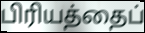
பிரியத்தைப்